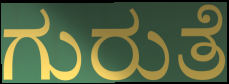
ಗುರುತೆ